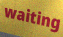
waiting